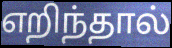
எறிந்தால்